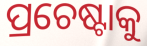
ପ୍ରଚେଷ୍ଟାକୁ